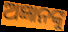
ଅଜ୍ଞାନଙ୍କୁ